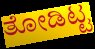
ತೋಡಿಟ್ಟ